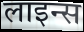
लाइन्स